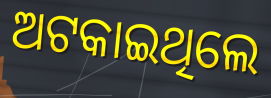
ଅଟକାଇଥିଲେ